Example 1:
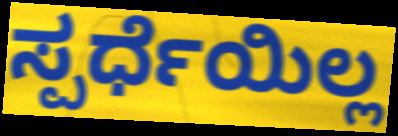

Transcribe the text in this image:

ಸ್ಪರ್ಧೆಯಿಲ್ಲ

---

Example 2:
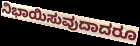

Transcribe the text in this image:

ನಿಭಾಯಿಸುವುದಾದರೂ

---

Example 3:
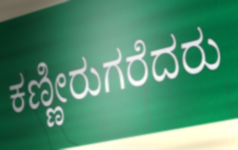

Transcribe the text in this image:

ಕಣ್ಣೀರುಗರೆದರು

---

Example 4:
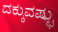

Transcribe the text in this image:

ದಕ್ಕುವಷ್ಟು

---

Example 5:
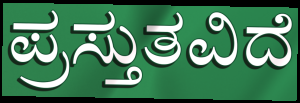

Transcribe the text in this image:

ಪ್ರಸ್ತುತವಿದೆ